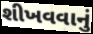
શીખવવાનું